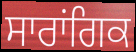
ਸਾਰਾਂਗਿਕ